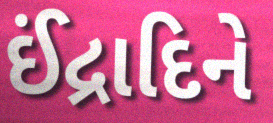
ઈંદ્રાદિને